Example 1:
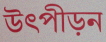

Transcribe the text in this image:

উৎপীড়ন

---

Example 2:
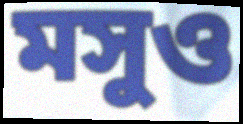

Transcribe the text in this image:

মসুও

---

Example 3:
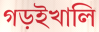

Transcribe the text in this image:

গড়ইখালি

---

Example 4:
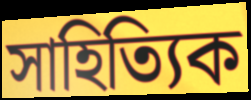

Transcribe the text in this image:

সাহিত্যিক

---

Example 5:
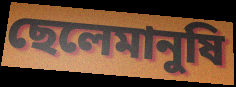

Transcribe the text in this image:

ছেলেমানুষি